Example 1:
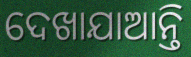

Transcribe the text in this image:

ଦେଖାଯାଆନ୍ତି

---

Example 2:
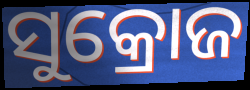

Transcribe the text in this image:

ସୁକ୍ରୋଜ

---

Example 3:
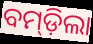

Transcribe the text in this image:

ବମ୍‍ଡ଼ିଲା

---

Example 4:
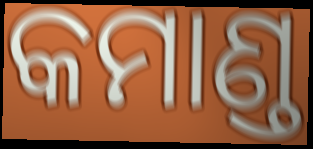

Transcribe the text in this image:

କମାଣ୍ଡ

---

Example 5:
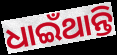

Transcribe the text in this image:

ଧାଇଁଥାନ୍ତି